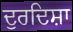
ਦੁਰਦਿਸ਼ਾ